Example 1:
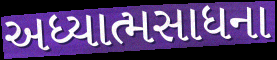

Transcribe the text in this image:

અધ્યાત્મસાધના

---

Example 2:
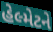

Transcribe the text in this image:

હેલ્મેટને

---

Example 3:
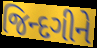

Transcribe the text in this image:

જિન્દગીને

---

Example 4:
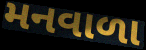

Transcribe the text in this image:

મનવાળા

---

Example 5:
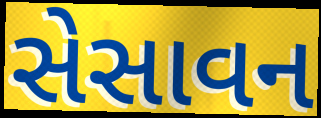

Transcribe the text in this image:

સેસાવન